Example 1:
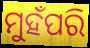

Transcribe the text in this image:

ମୁହଁପରି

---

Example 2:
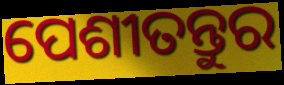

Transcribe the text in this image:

ପେଶୀତନ୍ତୁର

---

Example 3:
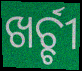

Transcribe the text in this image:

ଖର୍ଚ୍ଚୀ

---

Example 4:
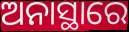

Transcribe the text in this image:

ଅନାସ୍ଥାରେ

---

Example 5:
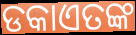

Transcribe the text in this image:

ଡକାଏତଙ୍କ